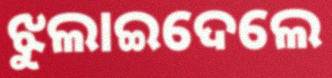
ଝୁଲାଇଦେଲେ